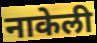
नाकेली